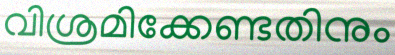
വിശ്രമിക്കേണ്ടതിനും